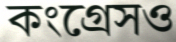
কংগ্রেসও